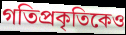
গতিপ্রকৃতিকেও